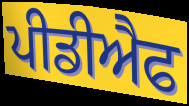
ਪੀਡੀਐਫ